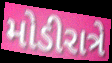
મોડીરાત્રે